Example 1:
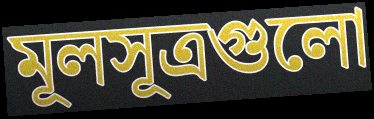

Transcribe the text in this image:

মূলসূত্রগুলো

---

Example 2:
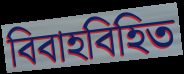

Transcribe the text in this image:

বিবাহবিহিত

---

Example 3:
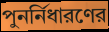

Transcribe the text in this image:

পুনর্নিধারণের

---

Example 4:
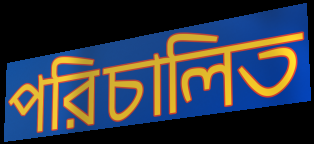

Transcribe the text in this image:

পরিচালিত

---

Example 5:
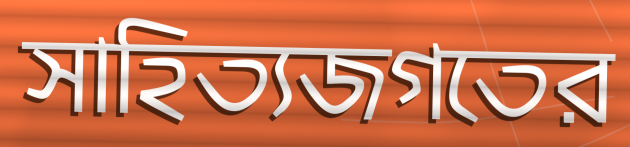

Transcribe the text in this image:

সাহিত্যজগতের